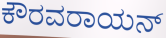
ಕೌರವರಾಯನ್